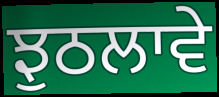
ਝੁਠਲਾਵੇ